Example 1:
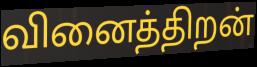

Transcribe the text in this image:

வினைத்திறன்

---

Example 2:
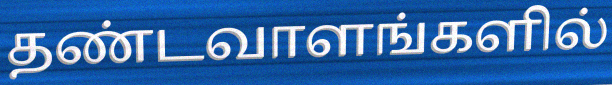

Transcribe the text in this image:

தண்டவாளங்களில்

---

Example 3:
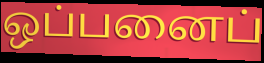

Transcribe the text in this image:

ஒப்பனைப்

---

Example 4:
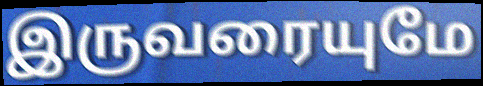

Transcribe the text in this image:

இருவரையுமே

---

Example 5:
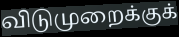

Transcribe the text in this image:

விடுமுறைக்குக்